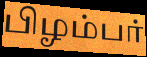
பிழம்பர்